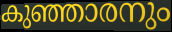
കുഞ്ഞാരനും